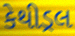
કેથીડ્રલ